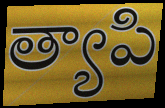
త్యాపి